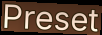
Preset